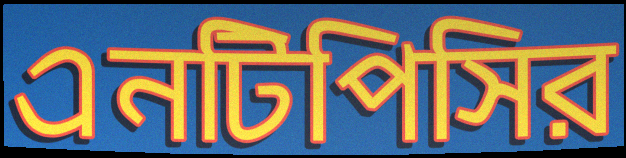
এনটিপিসির